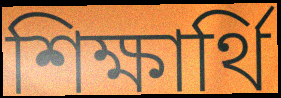
শিক্ষার্থি